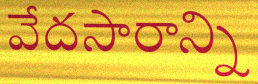
వేదసారాన్ని